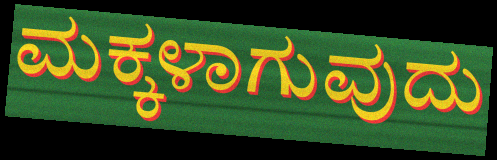
ಮಕ್ಕಳಾಗುವುದು